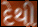
દેથી